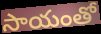
సాయంతో